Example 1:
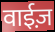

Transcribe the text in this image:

वाईज़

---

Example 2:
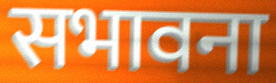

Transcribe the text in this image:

सभावना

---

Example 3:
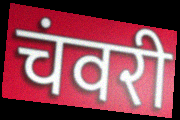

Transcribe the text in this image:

चंवरी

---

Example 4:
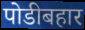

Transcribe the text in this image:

पोडीबहार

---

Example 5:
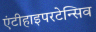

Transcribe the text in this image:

एंटीहाइपरटेन्सिव